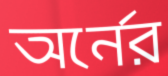
অর্নের